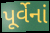
પૂર્વેનાં